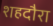
शहदौरा